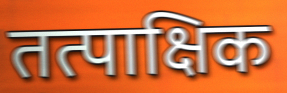
तत्पाक्षिक